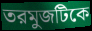
তরমুজটিকে